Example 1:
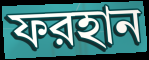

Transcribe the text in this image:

ফরহান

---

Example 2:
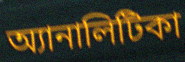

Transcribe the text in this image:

অ্যানালিটিকা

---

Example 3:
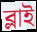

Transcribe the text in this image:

ব্লাই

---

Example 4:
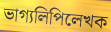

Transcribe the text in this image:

ভাগ্যলিপিলেখক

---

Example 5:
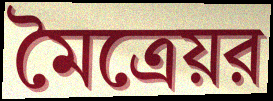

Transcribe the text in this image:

মৈত্রেয়র